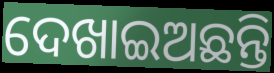
ଦେଖାଇଅଛନ୍ତି